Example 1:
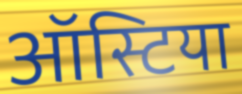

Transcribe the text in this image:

ऑस्टिया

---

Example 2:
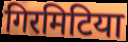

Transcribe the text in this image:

गिरमिटिया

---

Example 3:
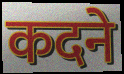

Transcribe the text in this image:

कदने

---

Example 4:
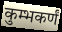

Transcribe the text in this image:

कुम्भकर्णं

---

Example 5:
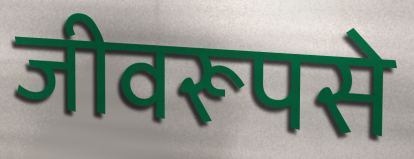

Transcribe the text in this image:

जीवरूपसे